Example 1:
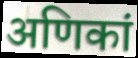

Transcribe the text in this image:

अणिकां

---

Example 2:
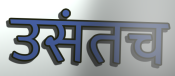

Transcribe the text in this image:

उसंतच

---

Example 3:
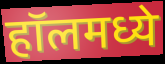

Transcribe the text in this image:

हॉलमध्ये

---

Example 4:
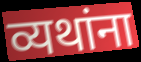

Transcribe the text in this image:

व्यथांना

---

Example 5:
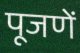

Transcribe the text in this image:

पूजणें